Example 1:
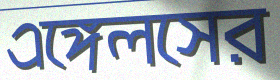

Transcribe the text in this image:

এঙ্গেলসের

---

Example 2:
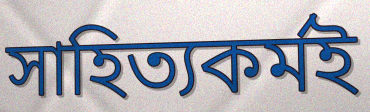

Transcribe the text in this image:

সাহিত্যকর্মই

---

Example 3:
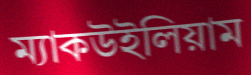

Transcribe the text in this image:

ম্যাকউইলিয়াম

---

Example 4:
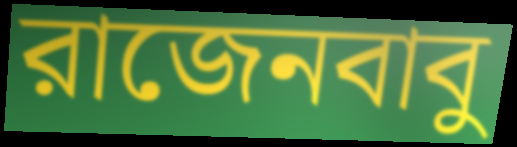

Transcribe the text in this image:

রাজেনবাবু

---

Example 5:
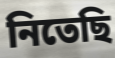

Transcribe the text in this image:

নিতেছি